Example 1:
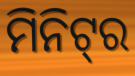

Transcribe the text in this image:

ମିନିଟ୍‌ର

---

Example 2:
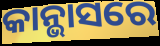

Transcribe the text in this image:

କାନ୍ଭାସରେ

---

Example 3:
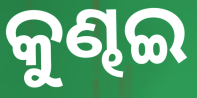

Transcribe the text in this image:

କୁଣ୍ଢଇ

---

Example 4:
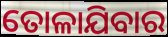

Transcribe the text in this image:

ତୋଳାଯିବାର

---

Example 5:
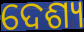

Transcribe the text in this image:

ଦେଶ୍ୟ